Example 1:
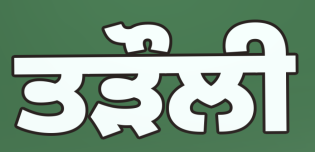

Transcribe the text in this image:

ਤੜੌਲੀ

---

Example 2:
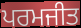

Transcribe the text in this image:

ਪਰਮਜੀਤ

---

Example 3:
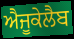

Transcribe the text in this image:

ਐਜੂਕੇਲੈਬ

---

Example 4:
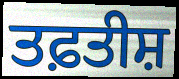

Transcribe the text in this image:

ਤਫ਼ਤੀਸ਼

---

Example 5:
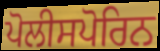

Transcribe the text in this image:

ਪੋਲੀਸਪੋਰਿਨ